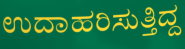
ಉದಾಹರಿಸುತ್ತಿದ್ದ